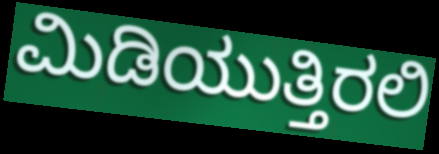
ಮಿಡಿಯುತ್ತಿರಲಿ